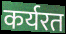
कर्यरत